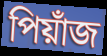
পিয়াঁজ